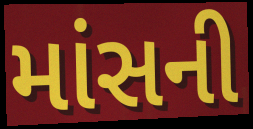
માંસની